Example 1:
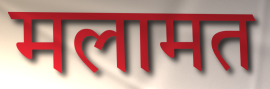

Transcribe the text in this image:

मलामत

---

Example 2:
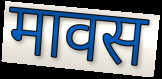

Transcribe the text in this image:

मावस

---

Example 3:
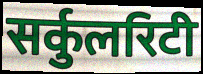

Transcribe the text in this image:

सर्कुलरिटी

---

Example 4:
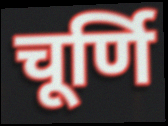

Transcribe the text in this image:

चूर्णि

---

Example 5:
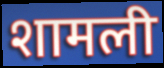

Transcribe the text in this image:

शामली